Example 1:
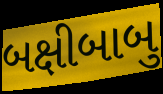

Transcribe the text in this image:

બક્ષીબાબુ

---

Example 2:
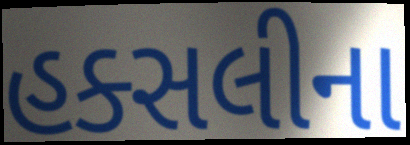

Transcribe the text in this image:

હક્સલીના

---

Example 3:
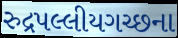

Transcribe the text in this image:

રુદ્રપલ્લીયગચ્છના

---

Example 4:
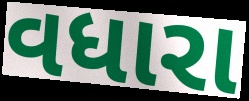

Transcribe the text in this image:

વધારા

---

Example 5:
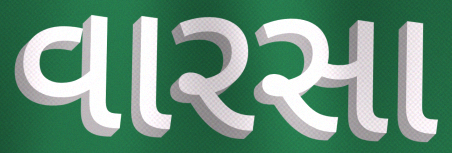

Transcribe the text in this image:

વારસા